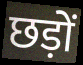
छड़ों